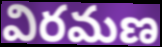
విరమణ